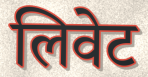
लिवेट